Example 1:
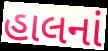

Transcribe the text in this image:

હાલનાં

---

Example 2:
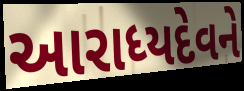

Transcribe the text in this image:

આરાધ્યદેવને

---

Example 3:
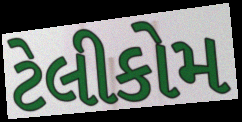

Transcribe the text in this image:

ટેલીકોમ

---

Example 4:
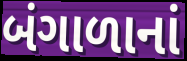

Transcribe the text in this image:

બંગાળાનાં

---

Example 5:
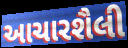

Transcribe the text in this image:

આચારશૈલી